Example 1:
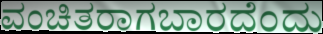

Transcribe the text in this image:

ವಂಚಿತರಾಗಬಾರದೆಂದು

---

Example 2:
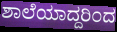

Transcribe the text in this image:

ಶಾಲೆಯಾದ್ದರಿಂದ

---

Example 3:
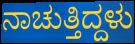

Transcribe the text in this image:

ನಾಚುತ್ತಿದ್ದಳು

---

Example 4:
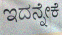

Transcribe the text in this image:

ಇದನ್ನೇಕೆ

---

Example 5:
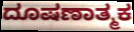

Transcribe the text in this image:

ದೂಷಣಾತ್ಮಕ